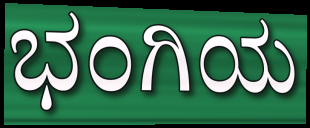
ಭಂಗಿಯ